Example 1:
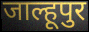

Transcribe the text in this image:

जाल्हूपुर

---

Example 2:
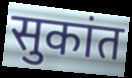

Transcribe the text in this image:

सुकांत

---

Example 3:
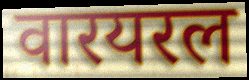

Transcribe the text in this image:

वारयरल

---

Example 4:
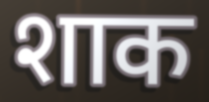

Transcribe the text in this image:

शाक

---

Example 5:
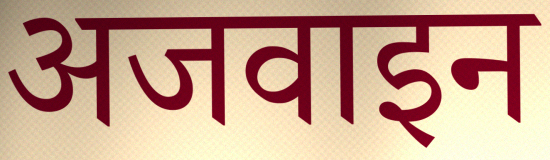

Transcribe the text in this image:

अजवाइन